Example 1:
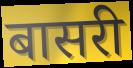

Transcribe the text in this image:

बासरी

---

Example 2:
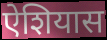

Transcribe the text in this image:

ऐशियास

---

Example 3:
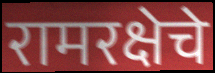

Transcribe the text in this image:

रामरक्षेचे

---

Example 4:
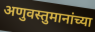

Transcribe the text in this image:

अणुवस्तुमानांच्या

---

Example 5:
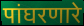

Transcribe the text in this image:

पांघरणारे